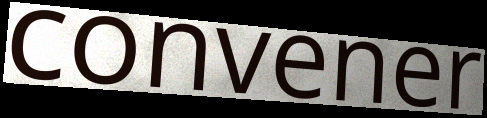
convener